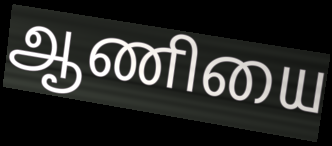
ஆணியை